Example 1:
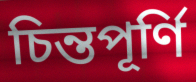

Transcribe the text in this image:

চিন্তপূৰ্ণি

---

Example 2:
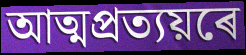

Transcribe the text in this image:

আত্মপ্ৰত্যয়ৰে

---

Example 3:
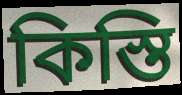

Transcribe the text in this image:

কিস্তি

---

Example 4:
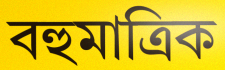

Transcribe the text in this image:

বহুমাত্ৰিক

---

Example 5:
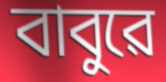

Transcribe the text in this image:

বাবুৱে